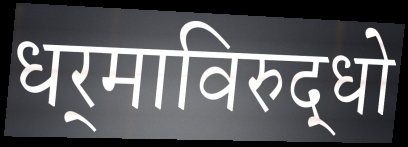
धर्माविरुद्धो